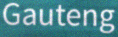
Gauteng